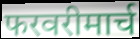
फरवरीमार्च